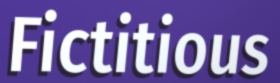
Fictitious